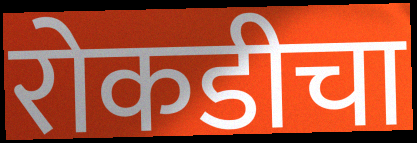
रोकडीचा